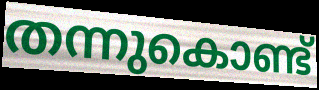
തന്നുകൊണ്ട്